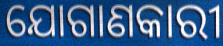
ଯୋଗାଣକାରୀ